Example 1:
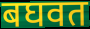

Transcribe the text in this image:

बघवत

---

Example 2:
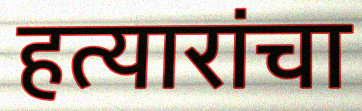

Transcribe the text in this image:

हत्यारांचा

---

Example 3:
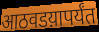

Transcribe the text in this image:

आठवडय़ापर्यंत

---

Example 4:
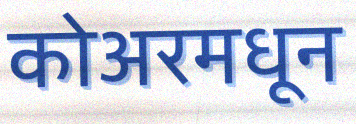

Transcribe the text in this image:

कोअरमधून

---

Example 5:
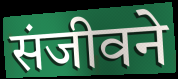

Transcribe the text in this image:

संजीवने